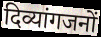
दिव्यांगजनों